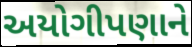
અયોગીપણાને